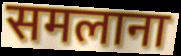
समलाना